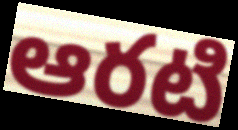
ఆరటి